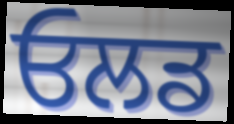
ਓਲਡ